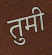
तुमी